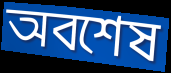
অবশেষ